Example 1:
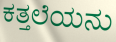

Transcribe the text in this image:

ಕತ್ತಲೆಯನು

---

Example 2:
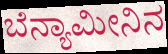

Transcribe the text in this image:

ಬೆನ್ಯಾಮೀನಿನ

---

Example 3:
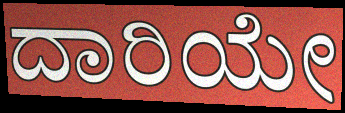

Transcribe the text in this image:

ದಾರಿಯೇ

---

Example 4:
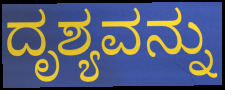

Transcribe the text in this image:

ದೃಶ್ಯವನ್ನು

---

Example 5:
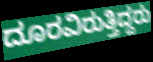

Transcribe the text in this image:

ದೂರವಿರುತ್ತಿದ್ದರು